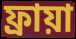
ফ্রায়া